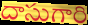
దాసుగారి